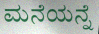
ಮನೆಯನ್ನೆ